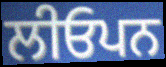
ਲੀਓਪਨ